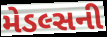
મેડલ્સની